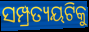
ସମ୍ପ୍ରତ୍ୟୟଟିକୁ